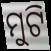
ମୁଟି